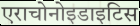
एराचोनोइडाइटिस